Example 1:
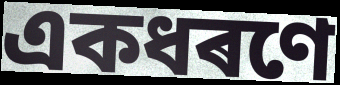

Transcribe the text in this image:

একধৰণে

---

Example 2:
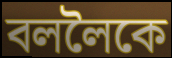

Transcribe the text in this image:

বললৈকে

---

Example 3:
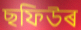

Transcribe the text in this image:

ছফিউৰ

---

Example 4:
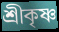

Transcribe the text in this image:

শ্ৰীকৃষ্ণ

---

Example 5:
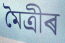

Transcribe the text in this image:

মৈত্ৰীৰ